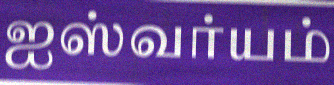
ஐஸ்வர்யம்